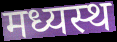
मध्यस्थ